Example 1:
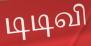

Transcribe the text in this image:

டிடிவி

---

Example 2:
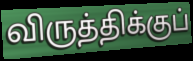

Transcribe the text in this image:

விருத்திக்குப்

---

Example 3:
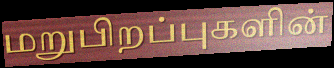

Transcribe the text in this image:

மறுபிறப்புகளின்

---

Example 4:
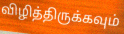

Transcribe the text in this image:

விழித்திருக்கவும்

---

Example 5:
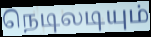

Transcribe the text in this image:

நெடிலடியும்